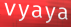
vyaya